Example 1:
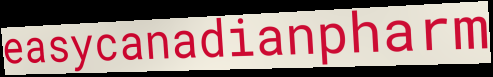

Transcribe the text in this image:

easycanadianpharm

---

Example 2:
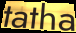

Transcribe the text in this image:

tatha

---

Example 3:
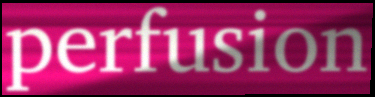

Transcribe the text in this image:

perfusion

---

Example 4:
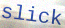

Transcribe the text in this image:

slick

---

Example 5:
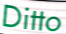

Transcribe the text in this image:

Ditto